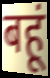
बहूं